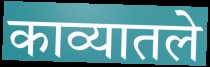
काव्यातले